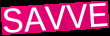
SAVVE